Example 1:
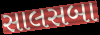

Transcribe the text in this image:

સાલસબા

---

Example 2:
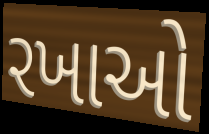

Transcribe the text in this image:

રખાઓ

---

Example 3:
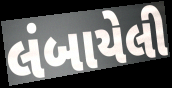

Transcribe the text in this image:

લંબાયેલી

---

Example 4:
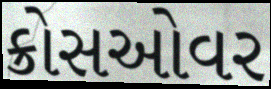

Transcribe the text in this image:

ક્રોસઓવર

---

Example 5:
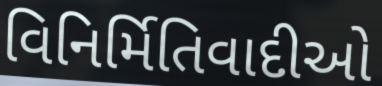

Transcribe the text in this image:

વિનિર્મિતિવાદીઓ